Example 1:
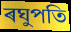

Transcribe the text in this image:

ৰঘুপতি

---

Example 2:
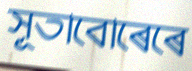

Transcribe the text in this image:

সূতাবোৰেৰে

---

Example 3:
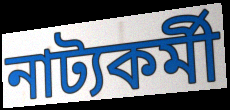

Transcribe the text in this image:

নাট্যকৰ্মী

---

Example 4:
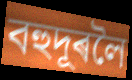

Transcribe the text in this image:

বহুদূৰলৈ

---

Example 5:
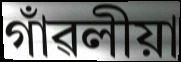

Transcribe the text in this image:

গাঁৱলীয়া